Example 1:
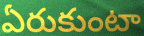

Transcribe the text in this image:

ఏరుకుంటా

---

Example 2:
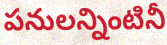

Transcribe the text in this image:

పనులన్నింటినీ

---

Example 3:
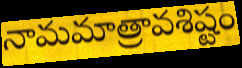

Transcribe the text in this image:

నామమాత్రావశిష్టం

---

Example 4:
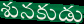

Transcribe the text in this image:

శునకుడు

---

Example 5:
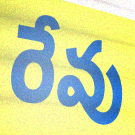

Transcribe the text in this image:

రేవు